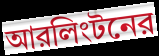
আরলিংটনের